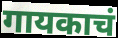
गायकाचं